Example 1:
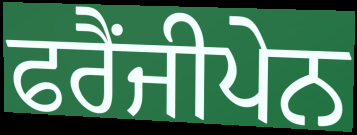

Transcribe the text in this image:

ਫਰੈਂਜੀਪੇਨ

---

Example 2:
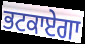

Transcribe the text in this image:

ਭਟਕਾਏਗਾ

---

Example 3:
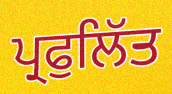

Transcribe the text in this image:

ਪ੍ਰਫੁਲਿੱਤ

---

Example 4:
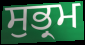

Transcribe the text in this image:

ਸੁਭ੍ਰਮ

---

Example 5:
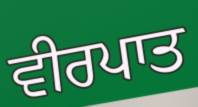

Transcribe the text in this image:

ਵੀਰਪਾਤ